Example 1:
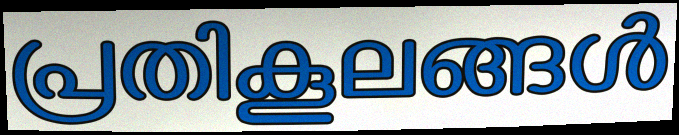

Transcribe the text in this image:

പ്രതികൂലങ്ങൾ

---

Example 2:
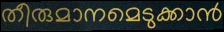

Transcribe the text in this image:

തീരുമാനമെടുക്കാൻ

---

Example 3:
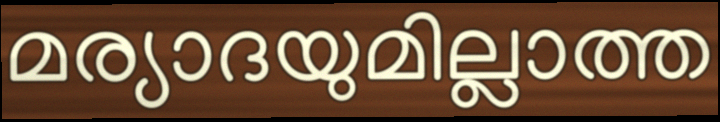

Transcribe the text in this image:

മര്യാദയുമില്ലാത്ത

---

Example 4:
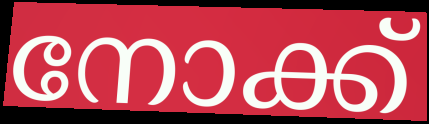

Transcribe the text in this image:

നോക്ക്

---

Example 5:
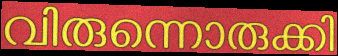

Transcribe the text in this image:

വിരുന്നൊരുക്കി